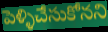
పెళ్ళిచేసుకోనని